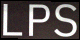
LPS